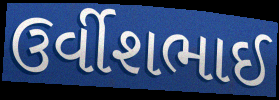
ઉર્વીશભાઈ